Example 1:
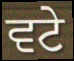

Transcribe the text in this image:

ਵਟੇ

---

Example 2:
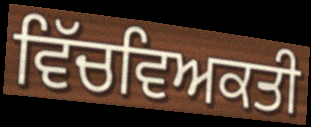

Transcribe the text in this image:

ਵਿੱਚਵਿਅਕਤੀ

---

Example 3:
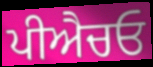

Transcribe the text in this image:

ਪੀਐਚਓ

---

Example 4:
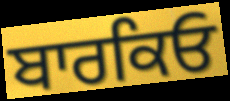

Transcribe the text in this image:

ਬਾਰਕਿਓ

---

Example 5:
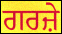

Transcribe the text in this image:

ਗਰਜ਼ੇ